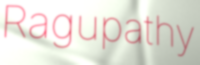
Ragupathy